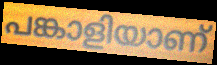
പങ്കാളിയാണ്